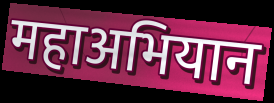
महाअभियान